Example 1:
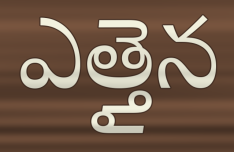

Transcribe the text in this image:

ఎత్తైన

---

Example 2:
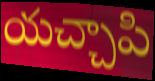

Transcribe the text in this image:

యచ్చాపి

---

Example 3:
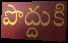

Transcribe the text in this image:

పొద్దుకి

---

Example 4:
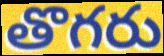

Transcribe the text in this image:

తొగరు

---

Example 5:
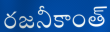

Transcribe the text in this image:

రజనీకాంత్